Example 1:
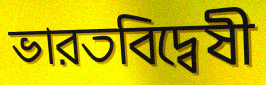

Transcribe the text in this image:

ভারতবিদ্বেষী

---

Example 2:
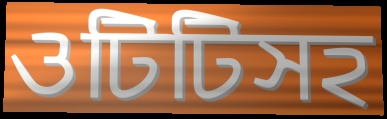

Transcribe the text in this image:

ওটিটিসহ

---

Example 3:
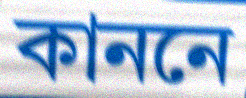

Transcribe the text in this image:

কাননে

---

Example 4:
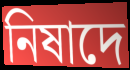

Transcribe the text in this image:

নিষাদে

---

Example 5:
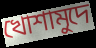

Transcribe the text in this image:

খোশামুদে